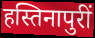
हस्तिनापुरीं